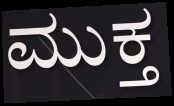
ಮುಕ್ತ